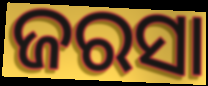
ଜରସା